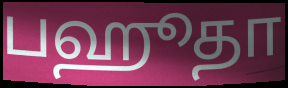
பஹூதா